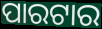
ପାରଟାର